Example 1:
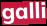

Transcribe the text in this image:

galli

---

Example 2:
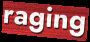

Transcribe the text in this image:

raging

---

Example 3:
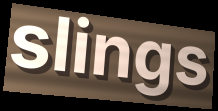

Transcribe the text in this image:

slings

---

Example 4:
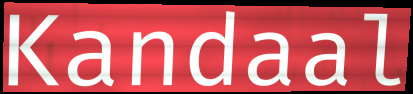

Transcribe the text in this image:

Kandaal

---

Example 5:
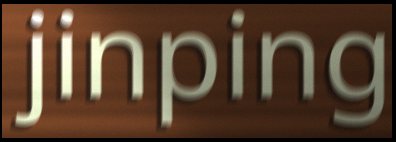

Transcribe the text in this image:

jinping